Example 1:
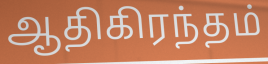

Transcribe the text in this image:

ஆதிகிரந்தம்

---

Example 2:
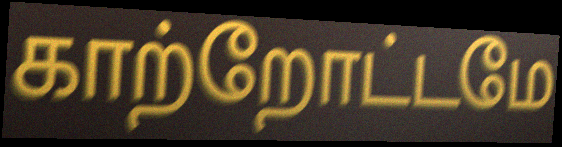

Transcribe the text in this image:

காற்றோட்டமே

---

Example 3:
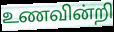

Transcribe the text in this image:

உணவின்றி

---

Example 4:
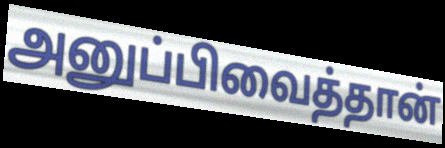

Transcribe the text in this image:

அனுப்பிவைத்தான்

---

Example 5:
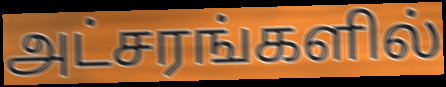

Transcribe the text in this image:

அட்சரங்களில்